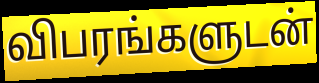
விபரங்களுடன்